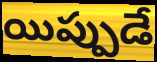
యిప్పుడే